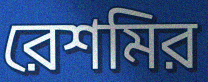
রেশমির